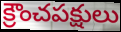
క్రౌంచపక్షులు